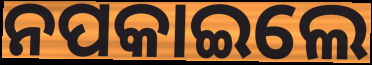
ନପକାଇଲେ